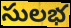
సులభ